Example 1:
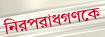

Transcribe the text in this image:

নিরপরাধগণকে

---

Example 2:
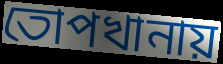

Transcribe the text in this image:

তোপখানায়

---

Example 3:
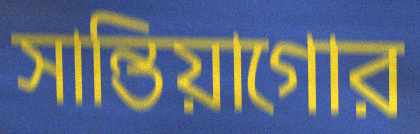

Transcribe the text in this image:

সান্তিয়াগোর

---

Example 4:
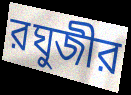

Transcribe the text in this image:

রঘুজীর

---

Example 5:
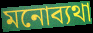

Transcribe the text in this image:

মনোব্যথা